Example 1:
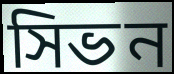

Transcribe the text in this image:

সিভন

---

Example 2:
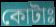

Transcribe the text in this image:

কোটাঃ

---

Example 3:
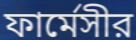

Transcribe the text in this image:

ফার্মেসীর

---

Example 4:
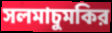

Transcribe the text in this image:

সলমাচুমকির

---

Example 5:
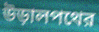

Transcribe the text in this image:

উড়ালপথের